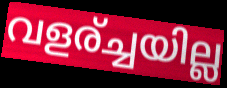
വളര്ച്ചയില്ല